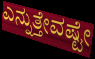
ಎನ್ನುತ್ತೇವಷ್ಟೇ